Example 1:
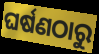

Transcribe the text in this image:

ଘର୍ଷଣଠାରୁ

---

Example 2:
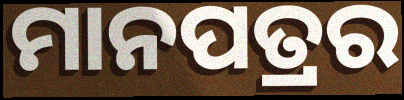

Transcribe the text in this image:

ମାନପତ୍ରର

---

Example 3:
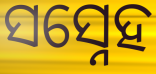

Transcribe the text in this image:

ସସ୍ନେହ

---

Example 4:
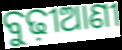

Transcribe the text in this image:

ବୁଢ଼ୀଆଣୀ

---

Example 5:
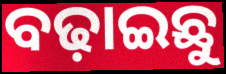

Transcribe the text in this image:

ବଢ଼ାଇଛୁ